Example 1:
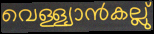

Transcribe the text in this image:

വെള്ള്യാൻകല്ലു്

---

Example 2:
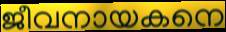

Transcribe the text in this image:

ജീവനായകനെ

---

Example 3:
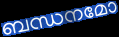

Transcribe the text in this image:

ബന്ധനമോ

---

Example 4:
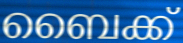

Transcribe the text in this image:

ബൈക്ക്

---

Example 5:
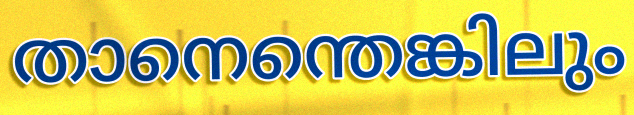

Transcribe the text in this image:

താനെന്തെങ്കിലും